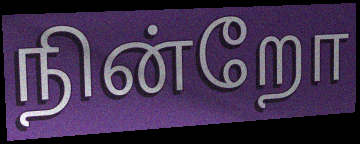
நின்றோ